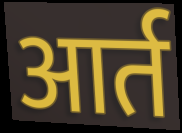
आर्त